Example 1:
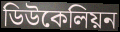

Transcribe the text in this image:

ডিউকেলিয়ন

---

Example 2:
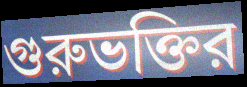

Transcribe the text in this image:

গুরুভক্তির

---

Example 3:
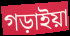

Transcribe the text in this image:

গড়াইয়া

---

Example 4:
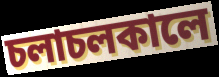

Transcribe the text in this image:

চলাচলকালে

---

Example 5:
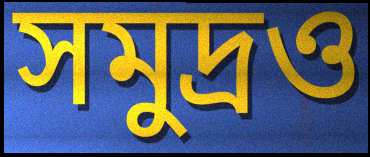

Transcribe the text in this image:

সমুদ্রও